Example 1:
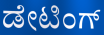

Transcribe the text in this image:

ಡೇಟಿಂಗ್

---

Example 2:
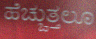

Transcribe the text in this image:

ಹೆಚ್ಚುತ್ತಲೂ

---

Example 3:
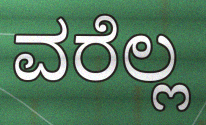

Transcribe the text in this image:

ವರೆಲ್ಲ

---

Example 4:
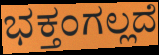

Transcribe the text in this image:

ಭಕ್ತಂಗಲ್ಲದೆ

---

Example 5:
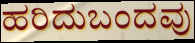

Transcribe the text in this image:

ಹರಿದುಬಂದವು